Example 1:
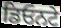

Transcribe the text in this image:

ਡਿਓਨਟੇ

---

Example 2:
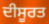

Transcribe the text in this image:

ਦੀਸੂਰਤ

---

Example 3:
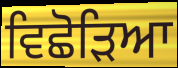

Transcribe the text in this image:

ਵਿਛੋੜਿਆ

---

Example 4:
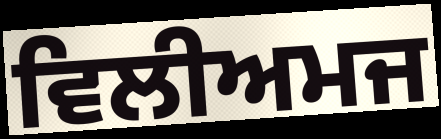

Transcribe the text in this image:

ਵਿਲੀਅਮਜ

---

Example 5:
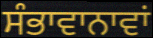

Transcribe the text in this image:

ਸੰਭਾਵਾਨਾਵਾਂ